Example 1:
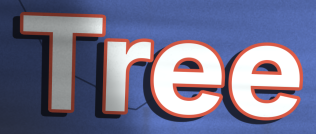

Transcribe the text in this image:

Tree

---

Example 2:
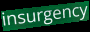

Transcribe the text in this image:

insurgency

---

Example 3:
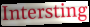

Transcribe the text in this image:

Intersting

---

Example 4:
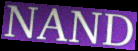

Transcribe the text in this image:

NAND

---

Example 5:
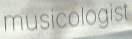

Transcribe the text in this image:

musicologist